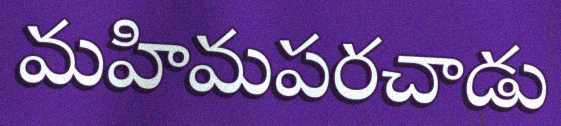
మహిమపరచాడు